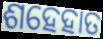
ଶହେହାତ